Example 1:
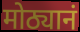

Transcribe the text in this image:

मोठ्यानं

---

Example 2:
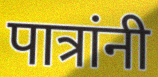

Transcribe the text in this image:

पात्रांनी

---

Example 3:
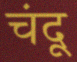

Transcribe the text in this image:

चंदू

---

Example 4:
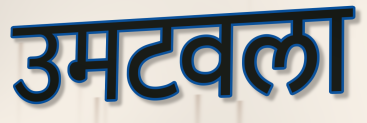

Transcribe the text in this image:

उमटवला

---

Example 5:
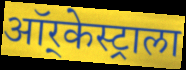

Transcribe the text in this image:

ऑर्केस्ट्राला